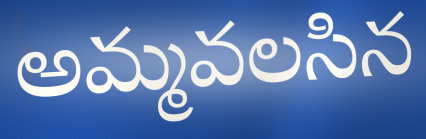
అమ్మవలసిన